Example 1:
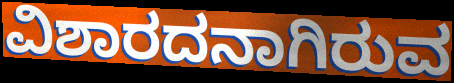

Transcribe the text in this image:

ವಿಶಾರದನಾಗಿರುವ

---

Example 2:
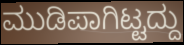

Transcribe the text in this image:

ಮುಡಿಪಾಗಿಟ್ಟದ್ದು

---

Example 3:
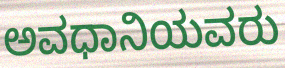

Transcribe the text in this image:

ಅವಧಾನಿಯವರು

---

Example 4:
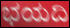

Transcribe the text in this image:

ಭಯದಿ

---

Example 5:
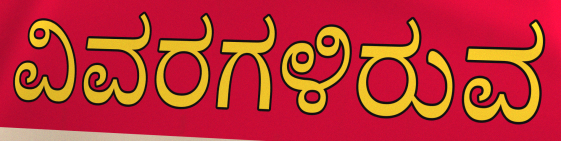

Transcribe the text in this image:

ವಿವರಗಳಿರುವ